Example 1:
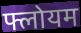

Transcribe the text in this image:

फ्लोयम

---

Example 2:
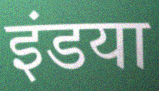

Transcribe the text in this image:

इंडया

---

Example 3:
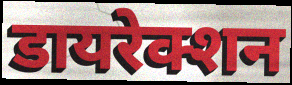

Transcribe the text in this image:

डायरेक्शन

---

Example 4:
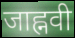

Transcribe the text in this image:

जाह्नवी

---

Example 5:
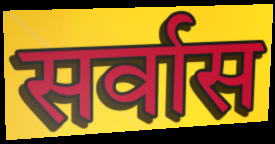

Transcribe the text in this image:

सर्वास